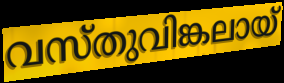
വസ്തുവിങ്കലായ്